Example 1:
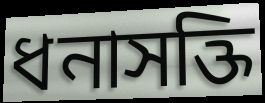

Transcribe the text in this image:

ধনাসক্তি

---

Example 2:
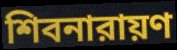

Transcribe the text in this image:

শিবনারায়ণ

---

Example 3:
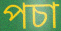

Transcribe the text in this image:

পচা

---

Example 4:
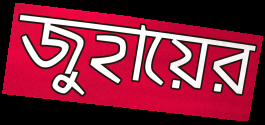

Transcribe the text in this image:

জুহায়ের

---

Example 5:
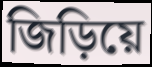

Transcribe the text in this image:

জিড়িয়ে